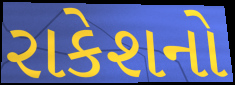
રાકેશનો